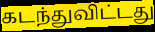
கடந்துவிட்டது